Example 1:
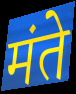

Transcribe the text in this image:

मंते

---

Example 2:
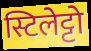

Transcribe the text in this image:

स्टिलेट्टो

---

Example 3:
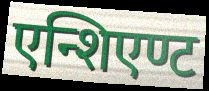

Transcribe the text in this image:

एन्शिएण्ट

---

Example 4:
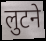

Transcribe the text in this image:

लुटने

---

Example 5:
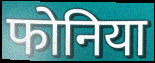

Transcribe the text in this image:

फोनिया